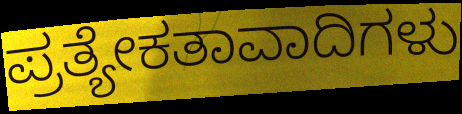
ಪ್ರತ್ಯೇಕತಾವಾದಿಗಳು